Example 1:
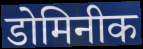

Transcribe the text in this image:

डोमिनीक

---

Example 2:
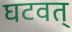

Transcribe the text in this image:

घटवत्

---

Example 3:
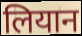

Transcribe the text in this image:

लियान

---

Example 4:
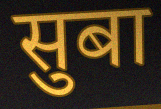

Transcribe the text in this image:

सुबा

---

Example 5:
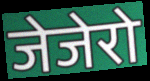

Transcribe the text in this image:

जेजेरो